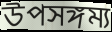
উপসঙ্গম্য